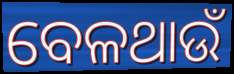
ବେଳଥାଉଁ